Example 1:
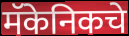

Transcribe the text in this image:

मॅकेनिकचे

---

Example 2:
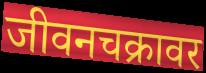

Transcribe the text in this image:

जीवनचक्रावर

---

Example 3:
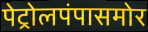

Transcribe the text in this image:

पेट्रोलपंपासमोर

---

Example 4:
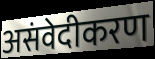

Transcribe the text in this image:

असंवेदीकरण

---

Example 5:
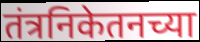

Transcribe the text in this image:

तंत्रनिकेतनच्या